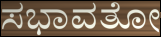
ಸಭಾವತೋ